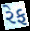
રેફ